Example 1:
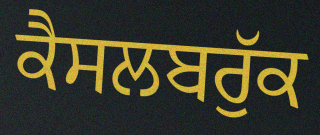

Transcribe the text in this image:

ਕੈਸਲਬਰੁੱਕ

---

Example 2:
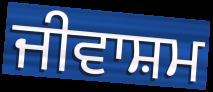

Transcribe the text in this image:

ਜੀਵਾਸ਼ਮ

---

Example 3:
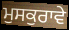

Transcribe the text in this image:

ਮੁਸਕੁਰਾਵੇ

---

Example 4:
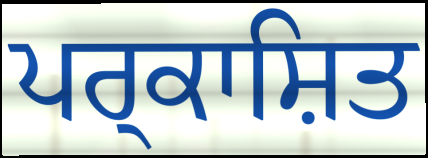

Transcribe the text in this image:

ਪਰ੍ਕਾਸ਼ਿਤ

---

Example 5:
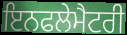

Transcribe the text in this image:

ਇਨਫਲੇਮੈਟਰੀ